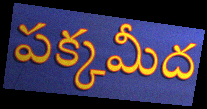
పక్కమీద